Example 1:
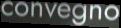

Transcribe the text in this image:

convegno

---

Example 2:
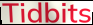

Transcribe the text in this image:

Tidbits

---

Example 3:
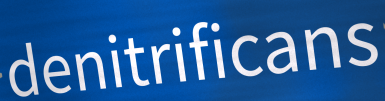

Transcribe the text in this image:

denitrificans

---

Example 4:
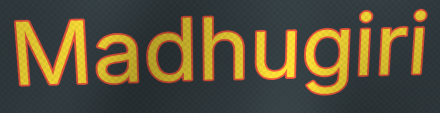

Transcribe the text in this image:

Madhugiri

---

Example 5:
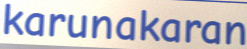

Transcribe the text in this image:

karunakaran